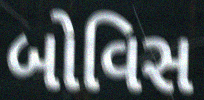
બોવિસ